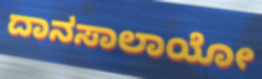
ದಾನಸಾಲಾಯೋ